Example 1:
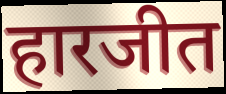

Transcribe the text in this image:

हारजीत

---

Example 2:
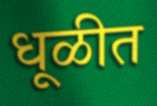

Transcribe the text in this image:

धूळीत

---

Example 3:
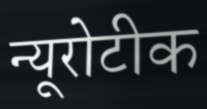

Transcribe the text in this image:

न्यूरोटीक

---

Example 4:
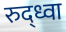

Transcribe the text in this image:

रुद्ध्वा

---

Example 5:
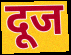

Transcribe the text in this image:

दूज